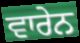
ਵਾਰੇਨ